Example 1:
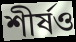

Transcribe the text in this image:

শীর্ষও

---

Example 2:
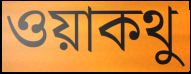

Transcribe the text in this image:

ওয়াকথু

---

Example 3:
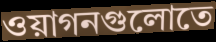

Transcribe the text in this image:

ওয়াগনগুলোতে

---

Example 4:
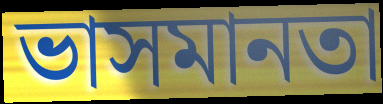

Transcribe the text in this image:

ভাসমানতা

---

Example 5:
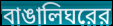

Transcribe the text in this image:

বাঙালিঘরের